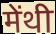
मेंथी